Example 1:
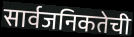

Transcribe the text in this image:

सार्वजनिकतेची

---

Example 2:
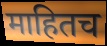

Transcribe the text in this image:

माहितच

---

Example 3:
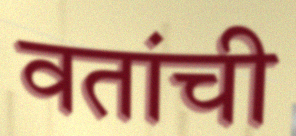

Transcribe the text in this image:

वतांची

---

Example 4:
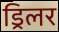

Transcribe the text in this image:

ड्रिलर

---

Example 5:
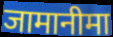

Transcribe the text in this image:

जामानीमा